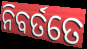
ନିବର୍ତତେ